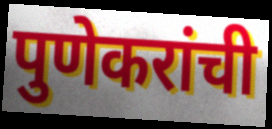
पुणेकरांची